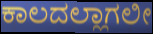
ಕಾಲದಲ್ಲಾಗಲೀ